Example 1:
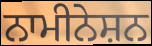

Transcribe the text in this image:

ਨਾਮੀਨੇਸ਼ਨ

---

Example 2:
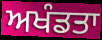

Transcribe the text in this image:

ਅਖੰਡਤਾ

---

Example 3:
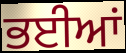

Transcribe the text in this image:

ਭਈਆਂ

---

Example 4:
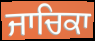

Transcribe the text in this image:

ਜਾਚਿਕਾ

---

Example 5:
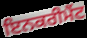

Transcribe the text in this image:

ਇਨਕਰੀਮੈਂਟ